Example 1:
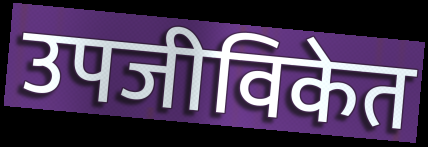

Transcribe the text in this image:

उपजीविकेत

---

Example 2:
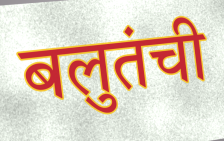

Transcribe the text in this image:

बलुतंची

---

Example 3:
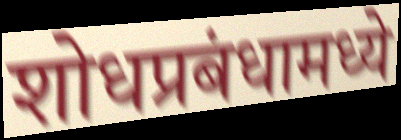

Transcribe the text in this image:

शोधप्रबंधामध्ये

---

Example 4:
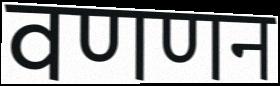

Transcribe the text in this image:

वणणन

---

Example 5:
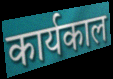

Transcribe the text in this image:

कार्यकाल